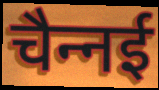
चैन्नई